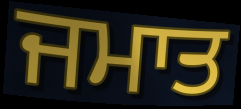
ਜਮਾਤ